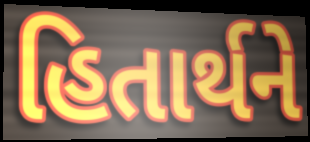
હિતાર્થને